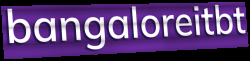
bangaloreitbt